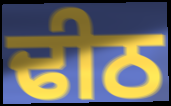
ਢੀਠ